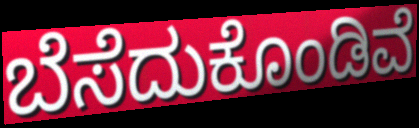
ಬೆಸೆದುಕೊಂಡಿವೆ